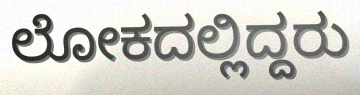
ಲೋಕದಲ್ಲಿದ್ದರು